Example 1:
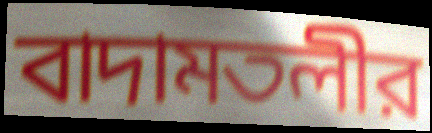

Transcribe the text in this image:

বাদামতলীর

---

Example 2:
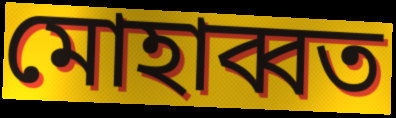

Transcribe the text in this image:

মোহাব্বত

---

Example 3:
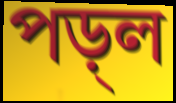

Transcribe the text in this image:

পড়্ল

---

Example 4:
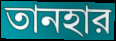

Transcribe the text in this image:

তানহার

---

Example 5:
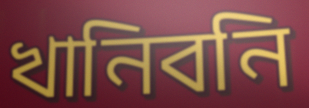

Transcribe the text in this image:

খানিবনি